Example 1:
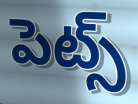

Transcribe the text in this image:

పెట్స్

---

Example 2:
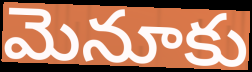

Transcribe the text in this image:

మెనూకు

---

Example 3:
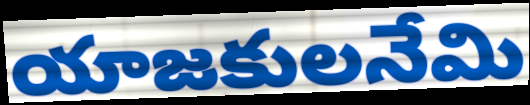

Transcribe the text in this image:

యాజకులనేమి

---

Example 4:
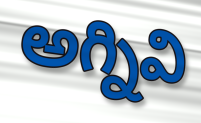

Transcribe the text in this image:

అగ్నివి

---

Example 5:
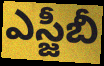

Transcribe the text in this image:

ఎస్జీబీ